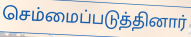
செம்மைப்படுத்தினார்